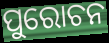
ପୁରୋଚନ